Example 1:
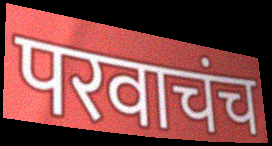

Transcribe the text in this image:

परवाचंच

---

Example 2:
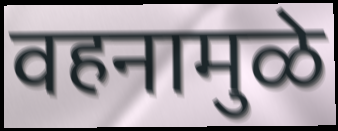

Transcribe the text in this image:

वहनामुळे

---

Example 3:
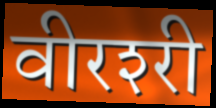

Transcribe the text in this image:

वीरश्री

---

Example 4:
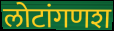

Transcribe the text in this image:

लोटांगणश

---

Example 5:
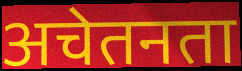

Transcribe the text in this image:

अचेतनता